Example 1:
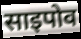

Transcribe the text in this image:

साइपोव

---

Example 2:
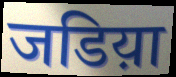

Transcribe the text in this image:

जडिय़ा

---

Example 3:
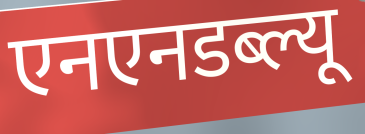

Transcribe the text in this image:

एनएनडब्ल्यू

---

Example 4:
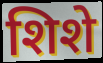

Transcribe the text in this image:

शिशे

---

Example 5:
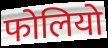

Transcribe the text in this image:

फोलियो